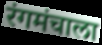
रंगमंचाला